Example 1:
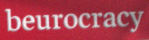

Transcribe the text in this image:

beurocracy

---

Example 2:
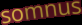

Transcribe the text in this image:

somnus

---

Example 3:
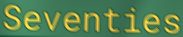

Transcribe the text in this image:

Seventies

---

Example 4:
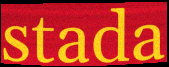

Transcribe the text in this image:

stada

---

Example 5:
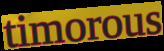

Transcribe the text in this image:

timorous